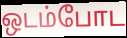
ஒடம்போட